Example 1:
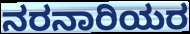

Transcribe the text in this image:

ನರನಾರಿಯರ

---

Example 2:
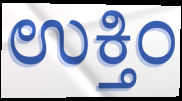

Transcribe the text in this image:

ಉಕ್ತಿಂ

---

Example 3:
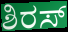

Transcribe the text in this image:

ಶಿರಸ್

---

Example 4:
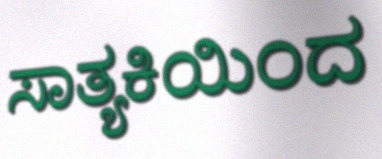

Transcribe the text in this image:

ಸಾತ್ಯಕಿಯಿಂದ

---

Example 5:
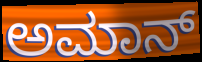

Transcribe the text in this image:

ಅಮಾನ್